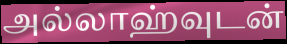
அல்லாஹ்வுடன்